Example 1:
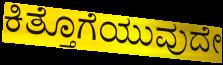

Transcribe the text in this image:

ಕಿತ್ತೊಗೆಯುವುದೇ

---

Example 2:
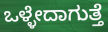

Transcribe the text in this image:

ಒಳ್ಳೇದಾಗುತ್ತೆ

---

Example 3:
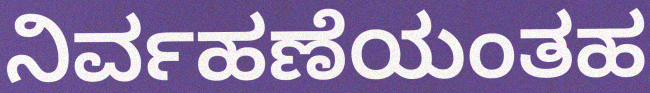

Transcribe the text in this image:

ನಿರ್ವಹಣೆಯಂತಹ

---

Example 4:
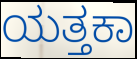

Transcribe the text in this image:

ಯತ್ತಕಾ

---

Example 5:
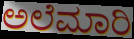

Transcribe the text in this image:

ಅಲೆಮಾರಿ